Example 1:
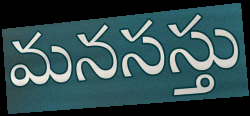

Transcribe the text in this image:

మనసస్తు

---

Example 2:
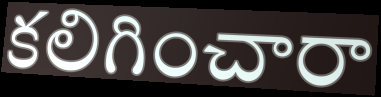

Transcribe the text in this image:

కలిగించారా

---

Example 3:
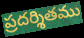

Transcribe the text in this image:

ప్రదర్శితము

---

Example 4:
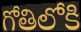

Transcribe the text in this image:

గోతిలోకి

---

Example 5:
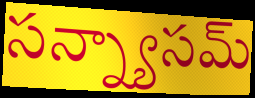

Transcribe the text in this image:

సన్న్యాసమ్